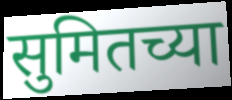
सुमितच्या